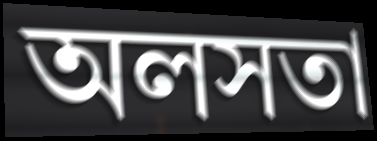
অলসতা